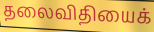
தலைவிதியைக்